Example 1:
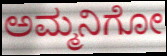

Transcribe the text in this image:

ಅಮ್ಮನಿಗೋ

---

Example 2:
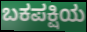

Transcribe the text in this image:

ಬಕಪಕ್ಷಿಯ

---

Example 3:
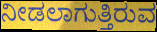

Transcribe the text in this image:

ನೀಡಲಾಗುತ್ತಿರುವ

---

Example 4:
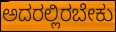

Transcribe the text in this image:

ಅದರಲ್ಲಿರಬೇಕು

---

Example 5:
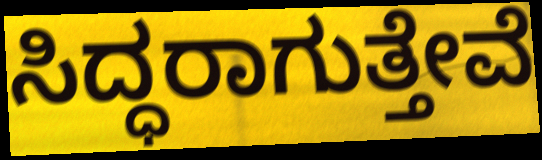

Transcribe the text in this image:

ಸಿದ್ಧರಾಗುತ್ತೇವೆ